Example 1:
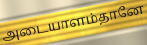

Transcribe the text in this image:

அடையாளம்தானே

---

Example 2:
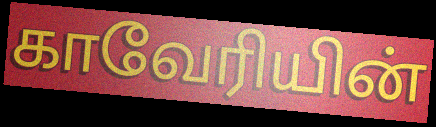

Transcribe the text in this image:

காவேரியின்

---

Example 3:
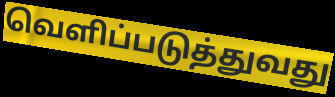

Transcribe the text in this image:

வெளிப்படுத்துவது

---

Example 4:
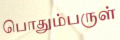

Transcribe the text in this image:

பொதும்பருள்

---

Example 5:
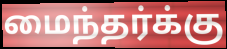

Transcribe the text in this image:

மைந்தர்க்கு